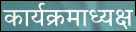
कार्यक्रमाध्यक्ष